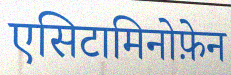
एसिटामिनोफ़ेन